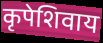
कृपेशिवाय